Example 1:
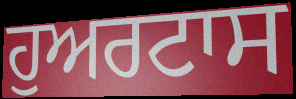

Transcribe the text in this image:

ਹੁਅਰਟਾਸ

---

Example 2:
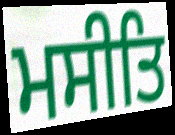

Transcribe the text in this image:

ਮਸੀਤਿ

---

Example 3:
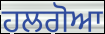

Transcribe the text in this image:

ਹਲਗੋਆ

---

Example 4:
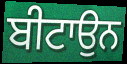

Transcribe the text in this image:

ਬੀਟਾਉਨ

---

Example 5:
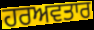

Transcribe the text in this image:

ਹਰਅਵਤਾਰ